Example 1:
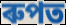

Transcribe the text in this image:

ৰুপত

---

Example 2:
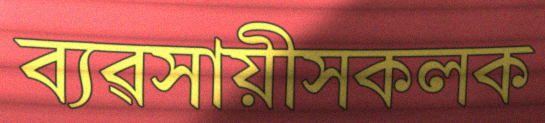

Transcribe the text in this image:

ব্যৱসায়ীসকলক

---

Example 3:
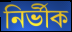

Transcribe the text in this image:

নিৰ্ভীক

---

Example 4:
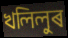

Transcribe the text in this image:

খলিলুৰ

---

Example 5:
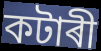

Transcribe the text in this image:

কটাৰী